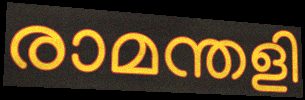
രാമന്തളി